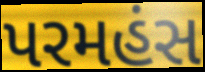
પરમહંસ